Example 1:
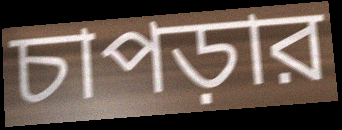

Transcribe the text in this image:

চাপড়ার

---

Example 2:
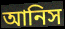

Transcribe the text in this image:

আনিস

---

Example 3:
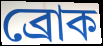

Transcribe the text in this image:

ব্রোক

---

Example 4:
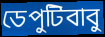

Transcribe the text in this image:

ডেপুটিবাবু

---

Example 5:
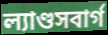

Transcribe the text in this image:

ল্যাণ্ডসবার্গ